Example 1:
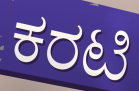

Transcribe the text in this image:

ಕರಟಿ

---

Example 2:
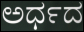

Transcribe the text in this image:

ಅರ್ಧದ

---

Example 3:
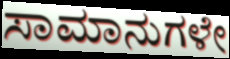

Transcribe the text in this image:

ಸಾಮಾನುಗಳೇ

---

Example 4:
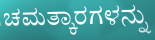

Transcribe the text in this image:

ಚಮತ್ಕಾರಗಳನ್ನು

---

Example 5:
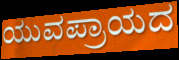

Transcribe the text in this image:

ಯುವಪ್ರಾಯದ